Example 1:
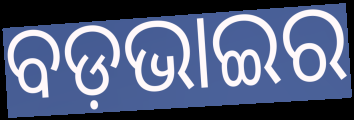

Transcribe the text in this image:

ବଡ଼ଭାଇର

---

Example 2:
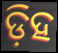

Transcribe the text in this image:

ଡ଼ିହ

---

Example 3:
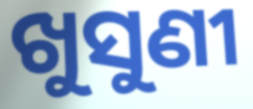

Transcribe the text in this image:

ଖୁସୁଣୀ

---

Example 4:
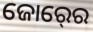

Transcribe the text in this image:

ଜୋର୍‍ରେ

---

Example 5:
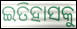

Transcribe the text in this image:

ଇତିହାସକୁ